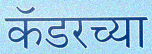
कॅडरच्या